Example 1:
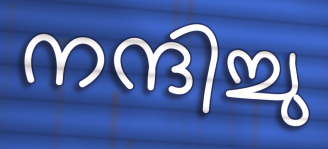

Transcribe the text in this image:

നന്ദിച്ചു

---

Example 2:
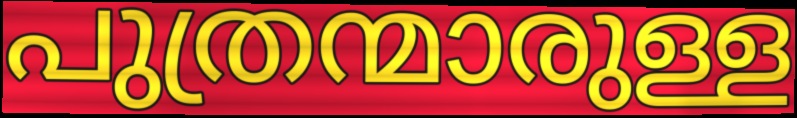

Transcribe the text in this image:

പുത്രന്മാരുള്ള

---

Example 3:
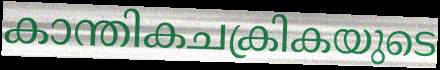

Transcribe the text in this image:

കാന്തികചക്രികയുടെ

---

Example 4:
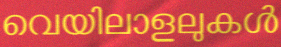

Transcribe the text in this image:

വെയിലാളലുകൾ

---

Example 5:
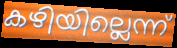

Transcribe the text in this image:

കഴിയില്ലെന്ന്